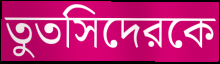
তুতসিদেরকে